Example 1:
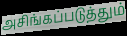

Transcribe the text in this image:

அசிங்கப்படுத்தும்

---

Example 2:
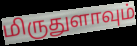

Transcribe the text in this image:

மிருதுளாவும்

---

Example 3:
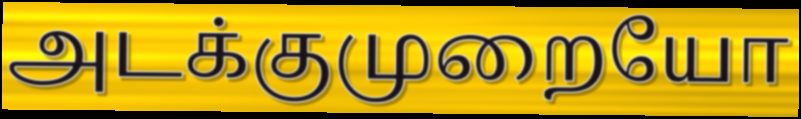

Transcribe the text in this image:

அடக்குமுறையோ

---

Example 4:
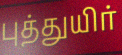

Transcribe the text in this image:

புத்துயிர்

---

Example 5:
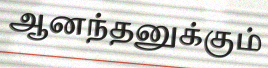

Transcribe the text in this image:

ஆனந்தனுக்கும்